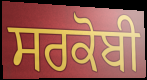
ਸਰਕੋਬੀ